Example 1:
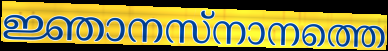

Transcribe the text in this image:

ജ്ഞാനസ്നാനത്തെ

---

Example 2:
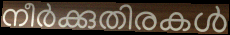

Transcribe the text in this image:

നീർക്കുതിരകൾ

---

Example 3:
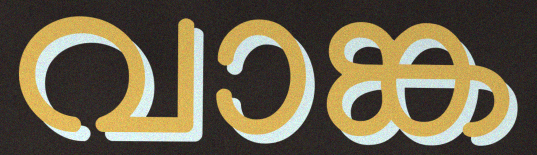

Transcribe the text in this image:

വാങ്ക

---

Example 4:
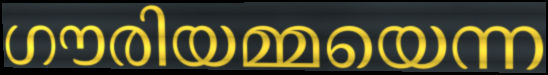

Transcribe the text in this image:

ഗൗരിയമ്മയെന്ന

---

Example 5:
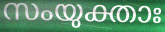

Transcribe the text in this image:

സംയുക്താഃ